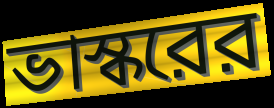
ভাস্করের